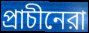
প্রাচীনেরা